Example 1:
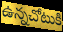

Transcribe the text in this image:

ఉన్నచోటుకి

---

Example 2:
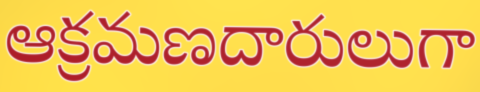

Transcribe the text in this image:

ఆక్రమణదారులుగా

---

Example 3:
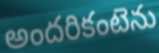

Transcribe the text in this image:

అందరికంటెను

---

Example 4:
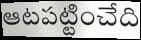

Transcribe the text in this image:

ఆటపట్టించేది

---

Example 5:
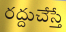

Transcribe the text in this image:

రద్దుచేస్తే